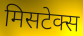
मिसटेक्स